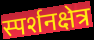
स्पर्शनक्षेत्र